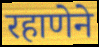
रहाणेने